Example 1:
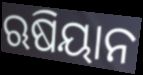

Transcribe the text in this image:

ଋଷିୟାନ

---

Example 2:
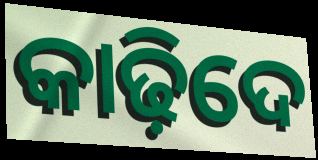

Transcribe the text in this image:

କାଢ଼ିଦେ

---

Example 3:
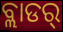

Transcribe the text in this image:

ବ୍ଲାଡର୍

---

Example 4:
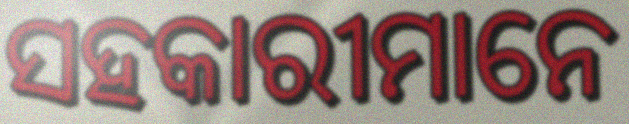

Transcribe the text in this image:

ସହକାରୀମାନେ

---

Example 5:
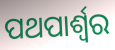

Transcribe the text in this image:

ପଥପାର୍ଶ୍ଵର